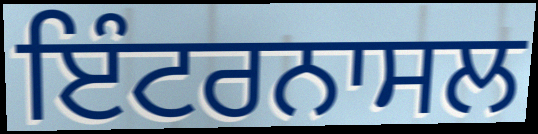
ਇੰਟਰਨਾਸਲ